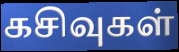
கசிவுகள்